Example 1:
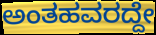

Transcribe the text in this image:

ಅಂತಹವರದ್ದೇ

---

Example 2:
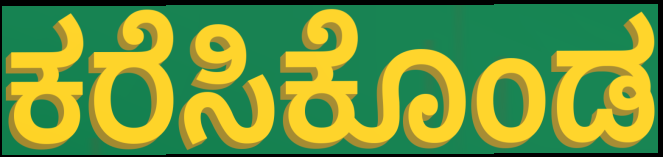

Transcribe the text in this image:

ಕರೆಸಿಕೊಂಡ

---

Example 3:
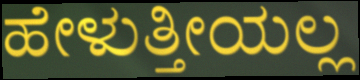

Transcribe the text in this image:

ಹೇಳುತ್ತೀಯಲ್ಲ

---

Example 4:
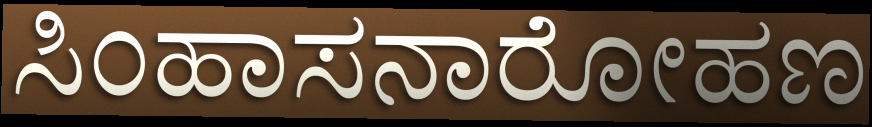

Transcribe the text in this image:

ಸಿಂಹಾಸನಾರೋಹಣ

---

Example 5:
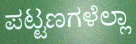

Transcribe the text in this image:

ಪಟ್ಟಣಗಳೆಲ್ಲಾ